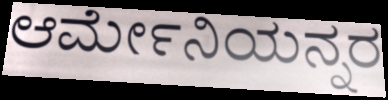
ಆರ್ಮೇನಿಯನ್ನರ